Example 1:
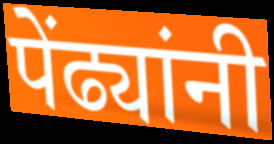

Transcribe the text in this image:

पेंढ्यांनी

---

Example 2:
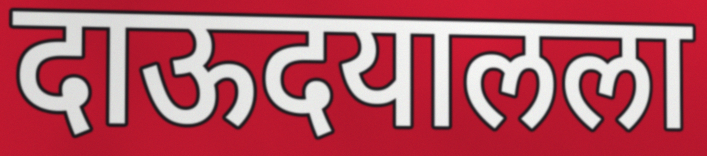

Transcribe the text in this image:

दाऊदयालला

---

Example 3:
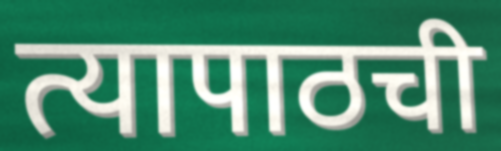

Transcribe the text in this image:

त्यापाठची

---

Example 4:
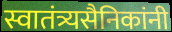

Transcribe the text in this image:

स्वातंत्र्यसैनिकांनी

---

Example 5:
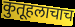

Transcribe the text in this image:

कुतूहलाचाच